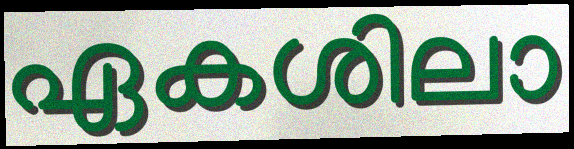
ഏകശിലാ